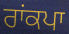
ਰਾਂਕਪਾ